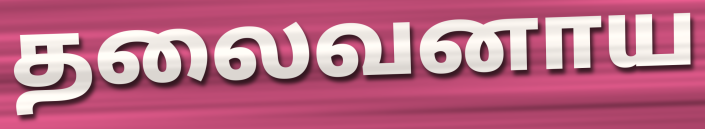
தலைவனாய